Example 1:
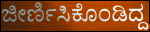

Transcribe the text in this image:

ಜೀರ್ಣಿಸಿಕೊಂಡಿದ್ದ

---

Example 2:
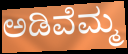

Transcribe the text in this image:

ಅಡಿವೆಮ್ಮ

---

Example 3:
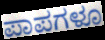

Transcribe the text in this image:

ಪಾಪಗಳೂ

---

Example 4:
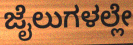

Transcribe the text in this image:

ಜೈಲುಗಳಲ್ಲೇ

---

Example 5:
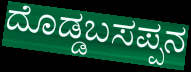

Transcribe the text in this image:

ದೊಡ್ಡಬಸಪ್ಪನ